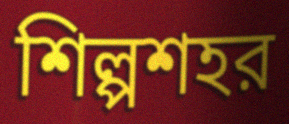
শিল্পশহর